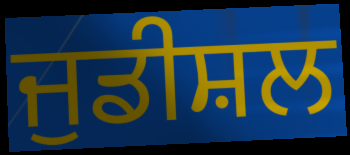
ਜੁਡੀਸ਼ਲ